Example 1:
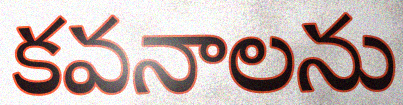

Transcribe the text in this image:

కవనాలను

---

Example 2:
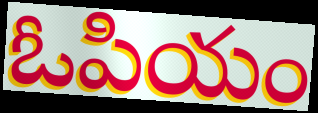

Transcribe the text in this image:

ఓపియం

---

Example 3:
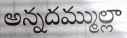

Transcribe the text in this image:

అన్నదమ్ముల్లా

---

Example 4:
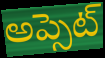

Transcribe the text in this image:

అప్సెట్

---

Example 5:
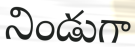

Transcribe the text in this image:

నిండుగా